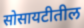
सोसायटीतील